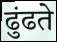
ढुंढते